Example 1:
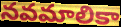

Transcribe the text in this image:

నవమాలికా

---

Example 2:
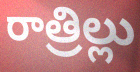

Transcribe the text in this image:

రాత్రిల్లు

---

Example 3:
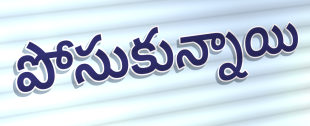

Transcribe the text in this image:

పోసుకున్నాయి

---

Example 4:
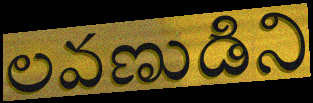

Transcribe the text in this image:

లవణుడిని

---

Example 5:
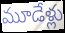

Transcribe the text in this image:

మూడేళ్లు